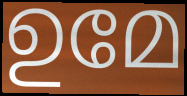
ഉമേ